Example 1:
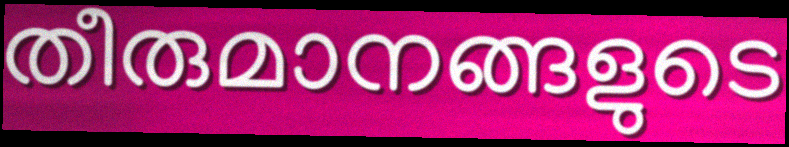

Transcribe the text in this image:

തീരുമാനങ്ങളുടെ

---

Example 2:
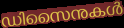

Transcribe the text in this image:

ഡിസൈനുകൾ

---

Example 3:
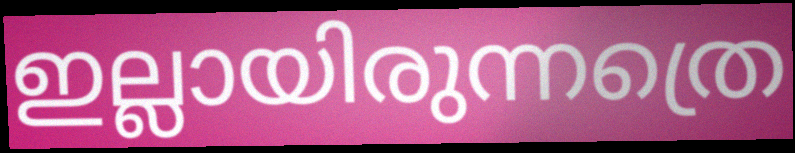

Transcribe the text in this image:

ഇല്ലായിരുന്നത്രെ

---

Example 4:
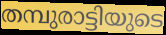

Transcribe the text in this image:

തമ്പുരാട്ടിയുടെ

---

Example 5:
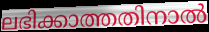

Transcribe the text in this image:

ലഭിക്കാത്തതിനാൽ